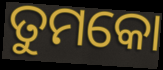
ତୁମକୋ